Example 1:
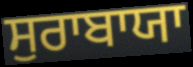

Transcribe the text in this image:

ਸੁਰਾਬਾਯਾ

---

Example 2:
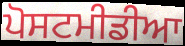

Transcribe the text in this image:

ਪੋਸਟਮੀਡੀਆ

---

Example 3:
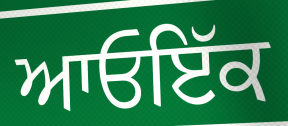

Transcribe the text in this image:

ਆਓਇੱਕ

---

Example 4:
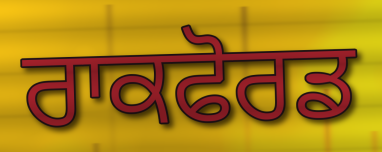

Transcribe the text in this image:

ਰਾਕਫੋਰਡ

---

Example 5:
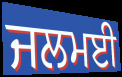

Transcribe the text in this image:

ਜਲਮਈ